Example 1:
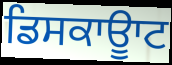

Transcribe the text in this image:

ਡਿਸਕਾਊਾਟ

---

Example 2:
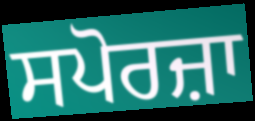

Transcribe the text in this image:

ਸਪੋਰਜ਼ਾ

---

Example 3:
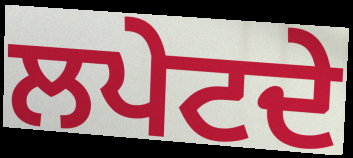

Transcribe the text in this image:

ਲਪੇਟਦੇ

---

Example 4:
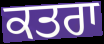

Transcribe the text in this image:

ਕਤਰਾ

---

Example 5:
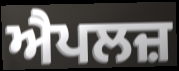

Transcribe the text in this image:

ਐਪਲਜ਼